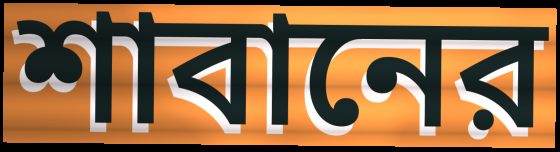
শাবানের